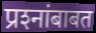
प्रश्‍नांबाबत